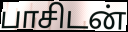
பாசிடன்